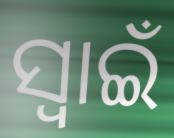
ସ୍ଵାଇଁ